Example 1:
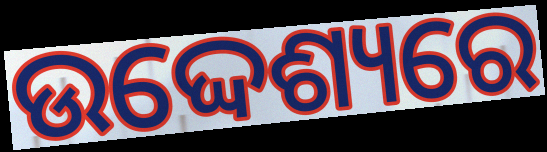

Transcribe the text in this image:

ଉଦ୍ଦେଶ୍ୟରେ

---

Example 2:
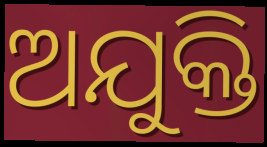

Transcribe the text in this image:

ଅଯୁକ୍ତି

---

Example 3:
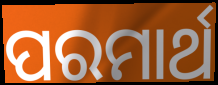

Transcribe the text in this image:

ପରମାର୍ଥ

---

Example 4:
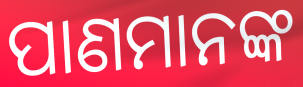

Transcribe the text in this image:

ପାଣମାନଙ୍କ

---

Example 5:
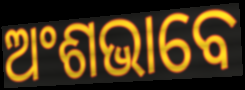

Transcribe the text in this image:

ଅଂଶଭାବେ